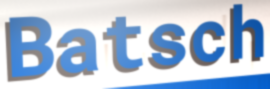
Batsch